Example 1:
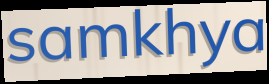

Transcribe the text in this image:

samkhya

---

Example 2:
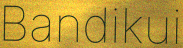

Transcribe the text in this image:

Bandikui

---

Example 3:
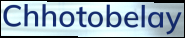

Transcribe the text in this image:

Chhotobelay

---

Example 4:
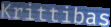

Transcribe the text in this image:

Krittibas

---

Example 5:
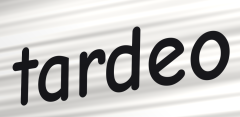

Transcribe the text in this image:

tardeo